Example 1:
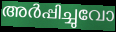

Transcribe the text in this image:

അർപ്പിച്ചുവോ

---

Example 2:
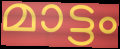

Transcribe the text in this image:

മാട്ടം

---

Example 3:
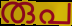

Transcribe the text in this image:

രുപ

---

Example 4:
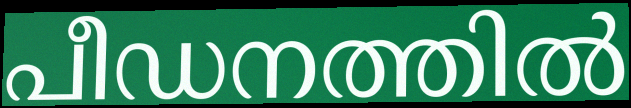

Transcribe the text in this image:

പീഡനത്തിൽ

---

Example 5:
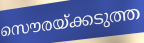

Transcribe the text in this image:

സൌരയ്ക്കടുത്ത